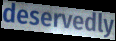
deservedly